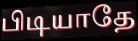
பிடியாதே